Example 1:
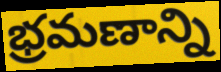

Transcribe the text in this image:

భ్రమణాన్ని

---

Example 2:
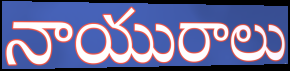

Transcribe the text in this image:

నాయురాలు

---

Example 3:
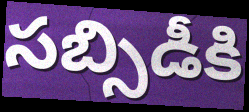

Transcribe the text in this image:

సబ్సిడీకి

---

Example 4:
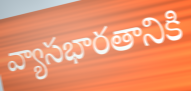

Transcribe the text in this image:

వ్యాసభారతానికి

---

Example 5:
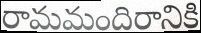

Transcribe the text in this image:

రామమందిరానికి